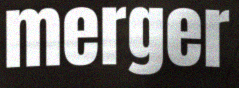
merger